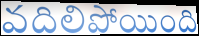
వదిలిపోయింది